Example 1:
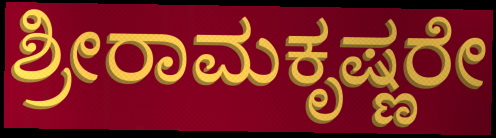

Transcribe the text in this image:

ಶ್ರೀರಾಮಕೃಷ್ಣರೇ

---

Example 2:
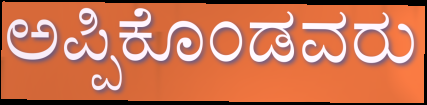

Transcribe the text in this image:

ಅಪ್ಪಿಕೊಂಡವರು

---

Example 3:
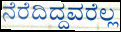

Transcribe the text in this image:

ನೆರೆದಿದ್ದವರೆಲ್ಲ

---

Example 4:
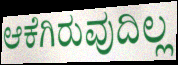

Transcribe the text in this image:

ಆಕೆಗಿರುವುದಿಲ್ಲ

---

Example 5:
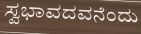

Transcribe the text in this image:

ಸ್ವಭಾವದವನೆಂದು